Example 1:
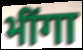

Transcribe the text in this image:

भींगा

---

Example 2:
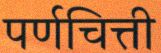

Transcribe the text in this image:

पर्णचित्ती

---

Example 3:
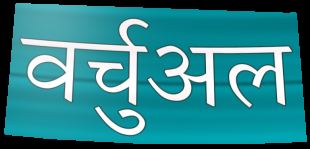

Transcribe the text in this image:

वर्चुअल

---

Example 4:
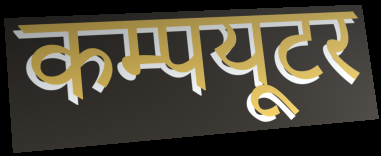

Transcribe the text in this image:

कम्पयूटर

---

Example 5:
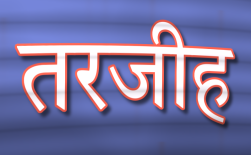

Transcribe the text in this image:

तरजीह